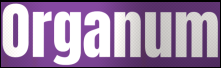
Organum